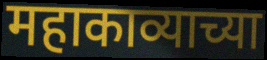
महाकाव्याच्या